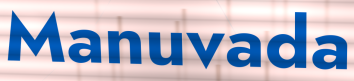
Manuvada